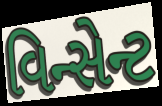
વિન્સેન્ટ